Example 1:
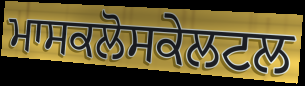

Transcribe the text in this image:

ਮਾਸਕਲੋਸਕੇਲਟਲ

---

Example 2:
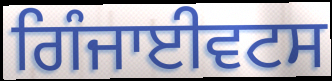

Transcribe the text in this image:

ਗਿੰਜਾਈਵਟਸ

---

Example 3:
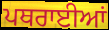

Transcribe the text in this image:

ਪਥਰਾਈਆਂ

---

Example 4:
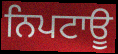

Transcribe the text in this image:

ਨਿਪਟਾਊ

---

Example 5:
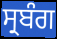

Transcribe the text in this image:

ਸ੍ਰਬੰਗ